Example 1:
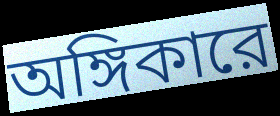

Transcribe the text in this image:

অঙ্গিকারে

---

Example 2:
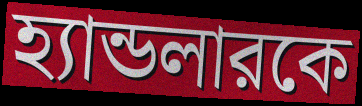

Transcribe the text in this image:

হ্যান্ডলারকে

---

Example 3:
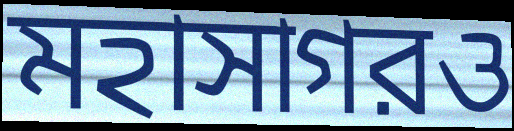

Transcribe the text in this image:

মহাসাগরও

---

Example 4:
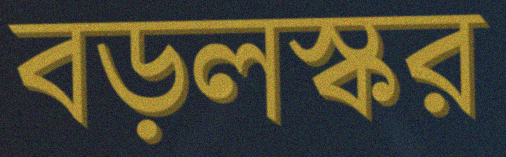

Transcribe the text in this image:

বড়লস্কর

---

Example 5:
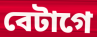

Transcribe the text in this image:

বেটাগে